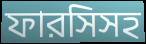
ফারসিসহ